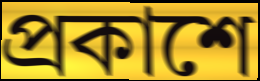
প্রকাশে